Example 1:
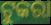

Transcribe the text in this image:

ଟୁକରା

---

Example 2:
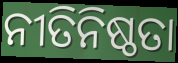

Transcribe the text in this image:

ନୀତିନିଷ୍ଠତା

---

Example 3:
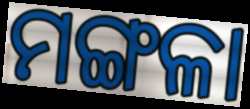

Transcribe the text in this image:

ମଙ୍ଗଳା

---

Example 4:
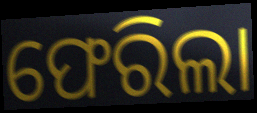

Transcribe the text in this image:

ଫେରିଲା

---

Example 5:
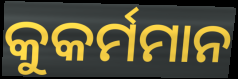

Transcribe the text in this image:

କୁକର୍ମମାନ